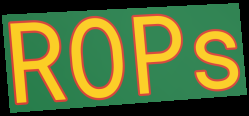
ROPs